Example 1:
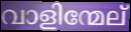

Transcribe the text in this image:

വാളിന്മേല്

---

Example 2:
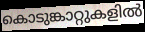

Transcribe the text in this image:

കൊടുങ്കാറ്റുകളിൽ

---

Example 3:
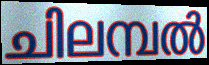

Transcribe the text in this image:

ചിലമ്പൽ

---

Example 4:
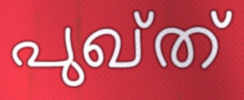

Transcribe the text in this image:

പുഖ്ത്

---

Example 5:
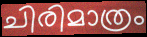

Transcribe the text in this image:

ചിരിമാത്രം